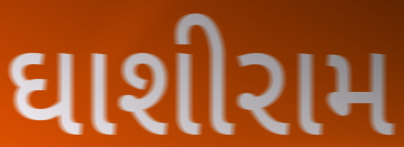
ઘાશીરામ